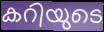
കറിയുടെ